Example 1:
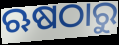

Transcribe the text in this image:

ଋଷଠାରୁ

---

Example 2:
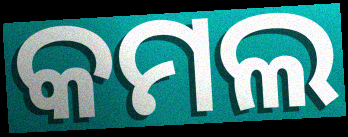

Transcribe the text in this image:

କମଲ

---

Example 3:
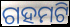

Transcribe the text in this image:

ଗହମଟି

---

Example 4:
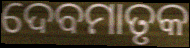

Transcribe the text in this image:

ଦେବମାତୃକ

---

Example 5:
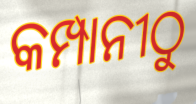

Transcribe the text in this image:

କମ୍ପାନୀଠୁ